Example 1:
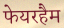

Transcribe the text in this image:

फेयरहैम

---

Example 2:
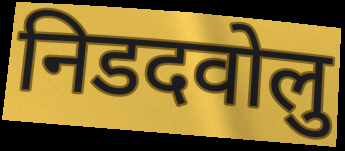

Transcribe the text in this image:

निडदवोलु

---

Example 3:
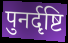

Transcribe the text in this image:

पुनर्दृष्टि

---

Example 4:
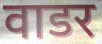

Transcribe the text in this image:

वाडर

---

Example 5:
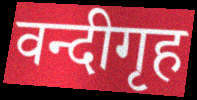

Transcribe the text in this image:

वन्दीगृह